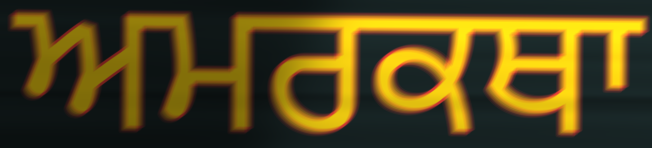
ਅਮਰਕਥਾ